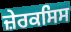
ਜ਼ੇਰਕਸਿਸ